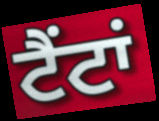
ਟੈਂਟਾਂ